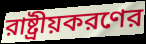
রাষ্ট্রীয়করণের